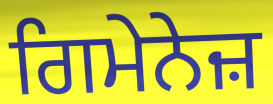
ਗਿਮੇਨੇਜ਼